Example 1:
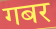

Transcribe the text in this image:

गबर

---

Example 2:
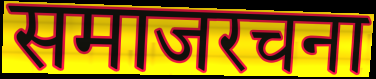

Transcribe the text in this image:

समाजरचना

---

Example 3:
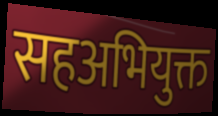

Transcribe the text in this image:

सहअभियुक्त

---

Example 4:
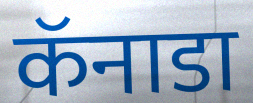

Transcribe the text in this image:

कॅनाडा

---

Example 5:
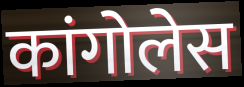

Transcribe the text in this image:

कांगोलेस